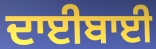
ਦਾਈਬਾਈ